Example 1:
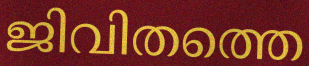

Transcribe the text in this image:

ജിവിതത്തെ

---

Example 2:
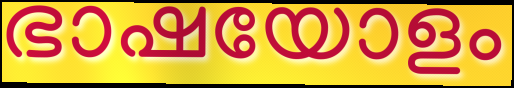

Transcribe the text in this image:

ഭാഷയോളം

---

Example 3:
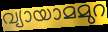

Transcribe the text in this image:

വ്യായാമമുറ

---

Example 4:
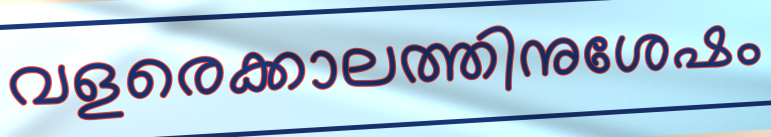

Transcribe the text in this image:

വളരെക്കാലത്തിനുശേഷം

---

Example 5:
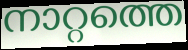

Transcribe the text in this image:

നാറ്റത്തെ